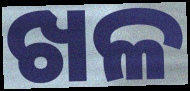
ଖଳ